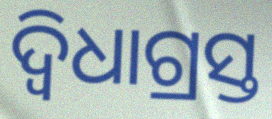
ଦ୍ୱିଧାଗ୍ରସ୍ତ